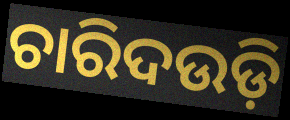
ଚାରିଦଉଡ଼ି